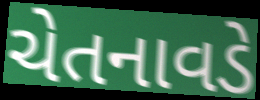
ચેતનાવડે